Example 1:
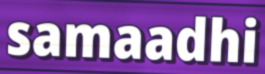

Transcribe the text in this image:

samaadhi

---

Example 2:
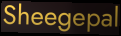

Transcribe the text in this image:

Sheegepal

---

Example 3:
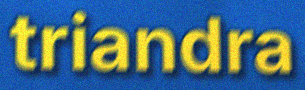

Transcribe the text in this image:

triandra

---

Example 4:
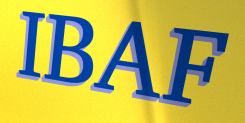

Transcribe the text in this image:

IBAF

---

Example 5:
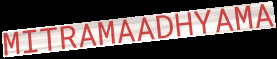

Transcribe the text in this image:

MITRAMAADHYAMA